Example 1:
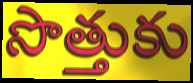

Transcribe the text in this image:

సొత్తుకు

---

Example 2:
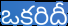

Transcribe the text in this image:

ఒకరిదీ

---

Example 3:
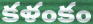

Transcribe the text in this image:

కళంకం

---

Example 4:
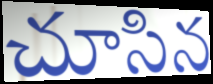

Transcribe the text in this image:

చూసిన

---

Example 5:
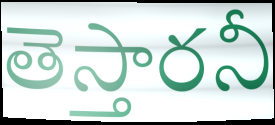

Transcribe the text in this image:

తెస్తారనీ